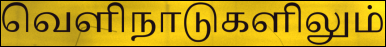
வெளிநாடுகளிலும்